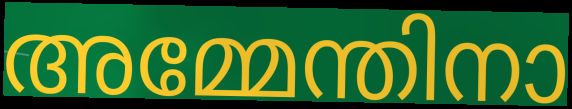
അമ്മേന്തിനാ